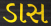
ડાસ